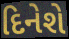
દિનેશે